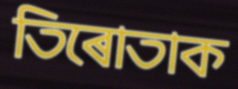
তিৰোতাক